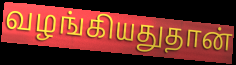
வழங்கியதுதான்